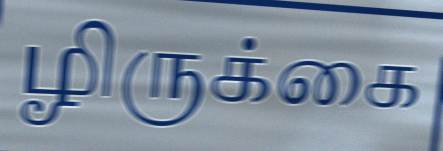
ழிருக்கை